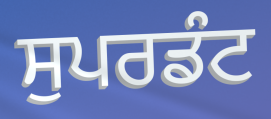
ਸੁਪਰਡੰਟ